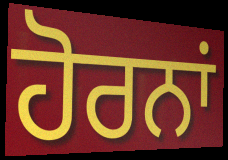
ਹੋਰਨਾਂ